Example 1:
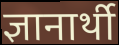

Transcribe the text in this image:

ज्ञानार्थी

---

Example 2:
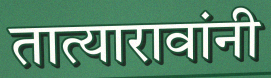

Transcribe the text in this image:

तात्यारावांनी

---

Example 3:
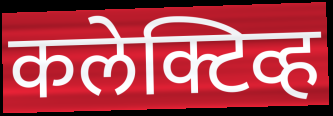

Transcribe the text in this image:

कलेक्टिव्ह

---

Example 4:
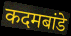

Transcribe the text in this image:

कदमबांडे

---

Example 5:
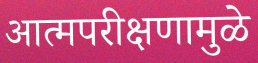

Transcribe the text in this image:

आत्मपरीक्षणामुळे